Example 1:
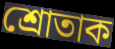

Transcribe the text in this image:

শ্ৰোতাক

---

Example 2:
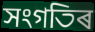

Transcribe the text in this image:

সংগতিৰ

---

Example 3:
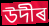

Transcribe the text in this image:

উদীৰ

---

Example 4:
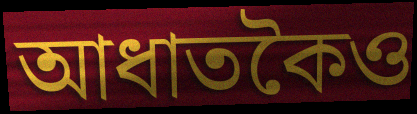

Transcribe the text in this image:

আধাতকৈও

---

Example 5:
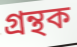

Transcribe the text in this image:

গ্ৰন্থক